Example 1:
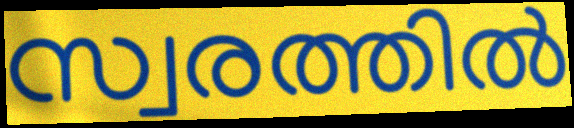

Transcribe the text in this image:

സ്വരത്തിൽ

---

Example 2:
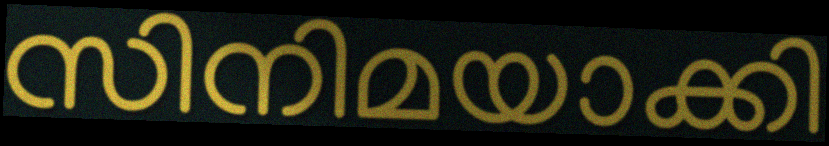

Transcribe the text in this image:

സിനിമയാക്കി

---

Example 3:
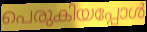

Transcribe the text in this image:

പെരുകിയപ്പോൾ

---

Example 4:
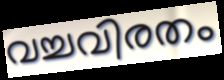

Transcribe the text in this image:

വച്ചവിരതം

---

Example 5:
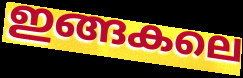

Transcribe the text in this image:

ഇങ്ങകലെ